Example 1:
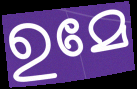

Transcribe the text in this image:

ഉമേ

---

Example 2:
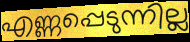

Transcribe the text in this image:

എണ്ണപ്പെടുന്നില്ല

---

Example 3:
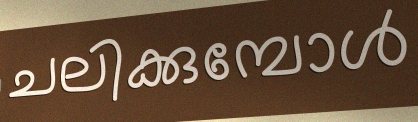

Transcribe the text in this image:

ചലിക്കുമ്പോൾ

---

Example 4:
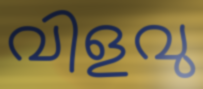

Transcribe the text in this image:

വിളവു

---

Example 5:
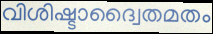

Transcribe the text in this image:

വിശിഷ്ടാദ്വൈതമതം